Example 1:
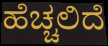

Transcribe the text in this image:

ಹೆಚ್ಚಲಿದೆ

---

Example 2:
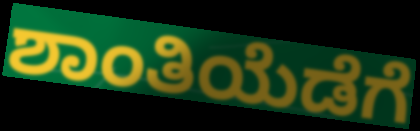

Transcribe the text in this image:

ಶಾಂತಿಯೆಡೆಗೆ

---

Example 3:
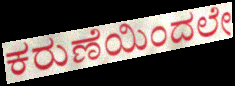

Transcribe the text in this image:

ಕರುಣೆಯಿಂದಲೇ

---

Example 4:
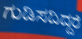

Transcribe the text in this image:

ಗುಡಿಸದಿದ್ದರೆ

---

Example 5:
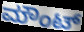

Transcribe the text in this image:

ಮೌಂಟ್